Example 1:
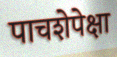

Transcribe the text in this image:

पाचशेपेक्षा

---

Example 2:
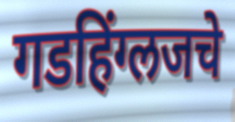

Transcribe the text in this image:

गडहिंग्लजचे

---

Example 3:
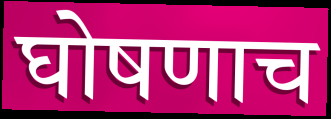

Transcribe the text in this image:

घोषणाच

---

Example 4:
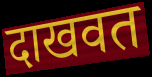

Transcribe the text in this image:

दाखवत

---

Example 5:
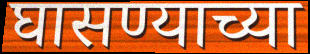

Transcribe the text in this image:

घासण्याच्या